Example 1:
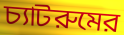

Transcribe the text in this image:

চ্যাটরুমের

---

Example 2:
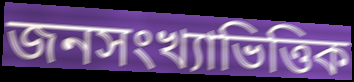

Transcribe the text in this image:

জনসংখ্যাভিত্তিক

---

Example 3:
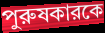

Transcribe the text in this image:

পুরুষকারকে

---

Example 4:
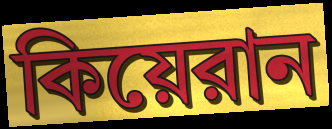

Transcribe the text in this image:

কিয়েরান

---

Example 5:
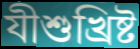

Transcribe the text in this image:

যীশুখ্রিষ্ট